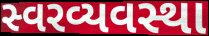
સ્વરવ્યવસ્થા